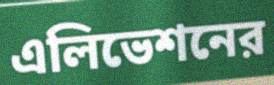
এলিভেশনের